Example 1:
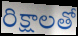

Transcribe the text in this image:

రిక్షాలతో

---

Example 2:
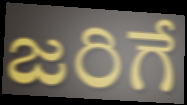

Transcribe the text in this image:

జరిగే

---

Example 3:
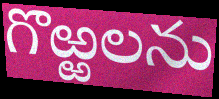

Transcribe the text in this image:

గొఱ్ఱలను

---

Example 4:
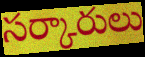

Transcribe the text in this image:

సర్కారులు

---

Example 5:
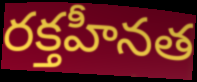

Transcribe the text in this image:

రక్తహీనత